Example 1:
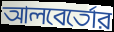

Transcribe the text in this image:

আলবের্তোর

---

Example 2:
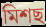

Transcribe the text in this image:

মিশছ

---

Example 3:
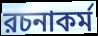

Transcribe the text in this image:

রচনাকর্ম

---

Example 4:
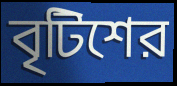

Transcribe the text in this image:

বৃটিশের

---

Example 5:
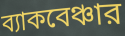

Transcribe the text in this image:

ব্যাকবেঞ্চার